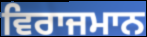
ਵਿਰਾਜਮਾਨ